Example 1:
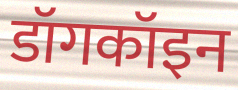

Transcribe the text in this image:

डॉगकॉइन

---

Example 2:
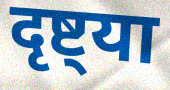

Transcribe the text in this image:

दृष्ट्या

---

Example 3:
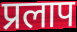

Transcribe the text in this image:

प्रलाप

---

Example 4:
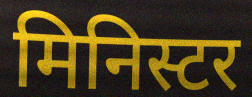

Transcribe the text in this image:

मिनिस्टर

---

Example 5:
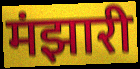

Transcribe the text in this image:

मंझारी